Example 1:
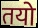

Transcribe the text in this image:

तयो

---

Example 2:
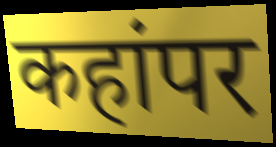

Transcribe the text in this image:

कहांपर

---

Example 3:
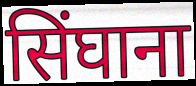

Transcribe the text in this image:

सिंघाना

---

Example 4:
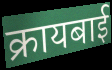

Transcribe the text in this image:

क्रायबाई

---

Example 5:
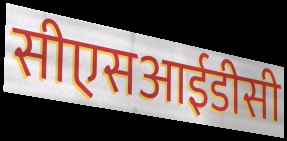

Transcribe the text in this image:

सीएसआईडीसी